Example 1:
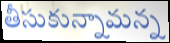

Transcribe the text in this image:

తీసుకున్నామన్న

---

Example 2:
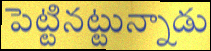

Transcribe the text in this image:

పెట్టినట్టున్నాడు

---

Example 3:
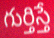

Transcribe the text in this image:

గుర్తిస్తే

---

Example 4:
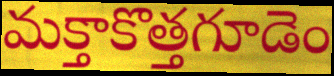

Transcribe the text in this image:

మక్తాకొత్తగూడెం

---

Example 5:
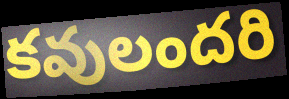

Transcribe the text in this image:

కవులందరి